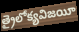
త్రైలోక్యవిజయీ